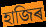
হাজিৰ